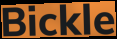
Bickle